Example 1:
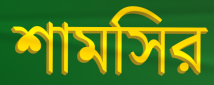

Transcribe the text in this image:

শামসির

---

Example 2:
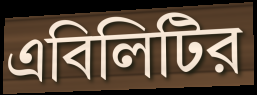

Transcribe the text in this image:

এবিলিটির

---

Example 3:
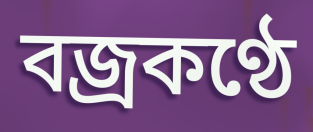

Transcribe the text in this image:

বজ্রকণ্ঠে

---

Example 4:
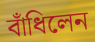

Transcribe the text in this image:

বাঁধিলেন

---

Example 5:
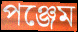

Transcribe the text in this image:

পঞ্জেম